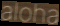
aloha